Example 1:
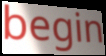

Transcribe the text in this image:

begin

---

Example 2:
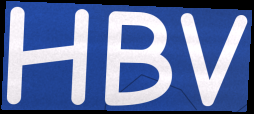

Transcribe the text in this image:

HBV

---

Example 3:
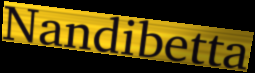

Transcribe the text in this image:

Nandibetta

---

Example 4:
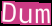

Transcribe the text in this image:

Dum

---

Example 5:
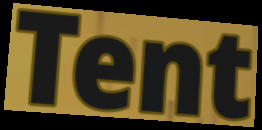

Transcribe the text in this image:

Tent